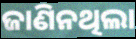
ଜାଣିନଥିଲା